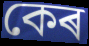
কেৰ